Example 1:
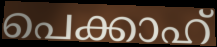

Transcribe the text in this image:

പെക്കാഹ്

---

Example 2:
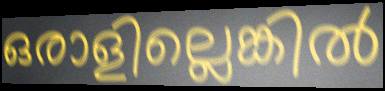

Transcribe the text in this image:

ഒരാളില്ലെങ്കിൽ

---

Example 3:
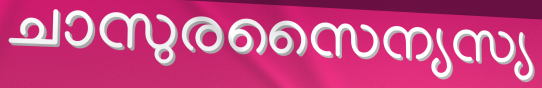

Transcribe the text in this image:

ചാസുരസൈന്യസ്യ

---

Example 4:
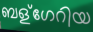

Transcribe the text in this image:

ബള്ഗേറിയ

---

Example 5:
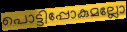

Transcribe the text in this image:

പൊട്ടിപ്പോകുമല്ലോ